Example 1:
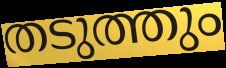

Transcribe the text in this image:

തടുത്തും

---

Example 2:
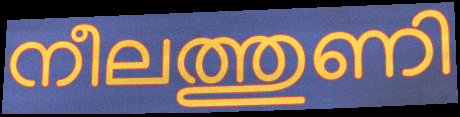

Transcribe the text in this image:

നീലത്തുണി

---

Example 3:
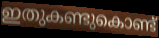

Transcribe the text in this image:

ഇതുകണ്ടുകൊണ്ട്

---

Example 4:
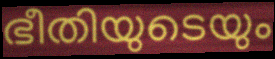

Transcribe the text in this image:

ഭീതിയുടെയും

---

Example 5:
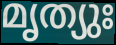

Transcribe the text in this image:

മൃത്യുഃ